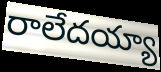
రాలేదయ్యా